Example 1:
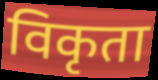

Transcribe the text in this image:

विकृता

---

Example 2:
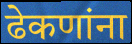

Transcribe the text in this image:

ढेकणांना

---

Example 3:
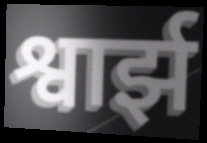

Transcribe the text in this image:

श्वार्झ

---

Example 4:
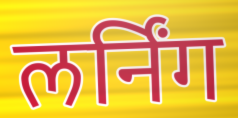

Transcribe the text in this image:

लर्निंग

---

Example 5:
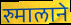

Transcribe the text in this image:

रुमालाने